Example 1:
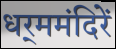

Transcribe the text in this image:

धर्ममंदिरें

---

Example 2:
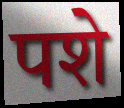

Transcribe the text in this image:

पशे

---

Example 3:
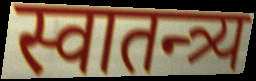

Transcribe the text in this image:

स्वातन्त्र्य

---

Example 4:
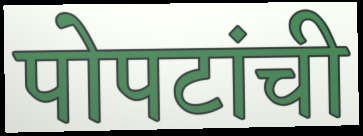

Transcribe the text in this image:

पोपटांची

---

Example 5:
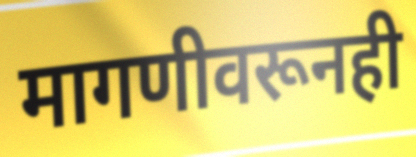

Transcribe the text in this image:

मागणीवरूनही